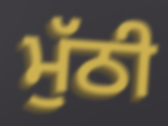
ਮੁੱਠੀ